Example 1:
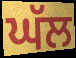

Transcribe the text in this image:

ਘੱਲ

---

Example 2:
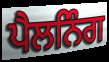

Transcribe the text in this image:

ਪੈਲਨਿੰਗ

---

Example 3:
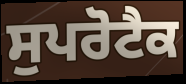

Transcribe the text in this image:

ਸੁਪਰੋਟੈਕ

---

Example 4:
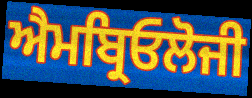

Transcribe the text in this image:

ਐਮਬ੍ਰਿਓਲੋਜੀ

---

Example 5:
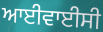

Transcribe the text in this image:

ਆਈਵਾਈਸੀ